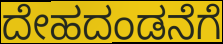
ದೇಹದಂಡನೆಗೆ